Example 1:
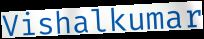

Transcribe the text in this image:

Vishalkumar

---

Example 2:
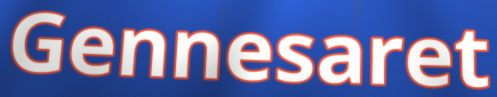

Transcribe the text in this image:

Gennesaret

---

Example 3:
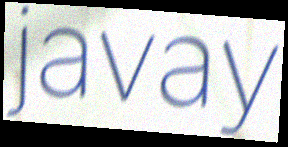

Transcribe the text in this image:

javay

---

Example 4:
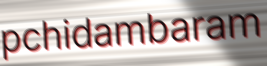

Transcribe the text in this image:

pchidambaram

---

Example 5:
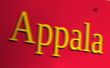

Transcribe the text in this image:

Appala